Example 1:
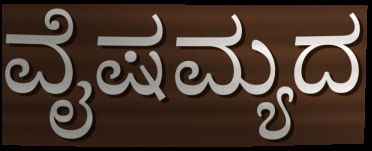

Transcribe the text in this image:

ವೈಷಮ್ಯದ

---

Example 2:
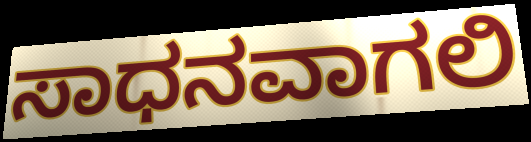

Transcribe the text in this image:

ಸಾಧನವಾಗಲಿ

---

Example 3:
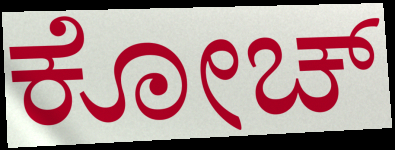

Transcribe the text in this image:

ಕೋಚ್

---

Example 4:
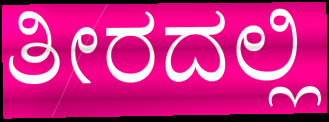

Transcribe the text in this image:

ತೀರದಲ್ಲಿ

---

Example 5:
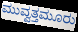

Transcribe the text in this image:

ಮುವ್ವತ್ತಮೂರು